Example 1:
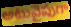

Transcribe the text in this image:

అటువైపుగా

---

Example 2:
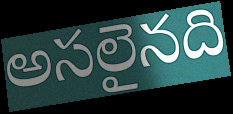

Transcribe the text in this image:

అసలైనది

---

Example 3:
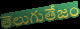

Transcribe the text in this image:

తెలుగుతేజం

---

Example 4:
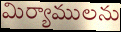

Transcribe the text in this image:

మిర్యాములను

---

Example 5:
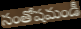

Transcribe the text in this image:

సంతోషమండీ